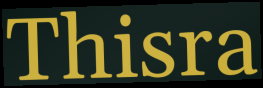
Thisra